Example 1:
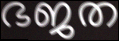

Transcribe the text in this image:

ഭജത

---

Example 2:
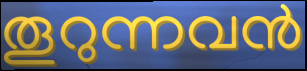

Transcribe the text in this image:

തൂറുന്നവൻ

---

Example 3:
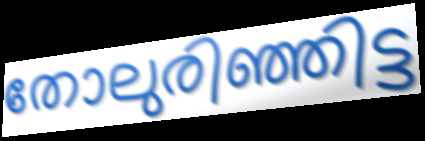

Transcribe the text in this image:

തോലുരിഞ്ഞിട്ട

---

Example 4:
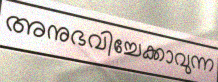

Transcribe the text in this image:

അനുഭവിച്ചേക്കാവുന്ന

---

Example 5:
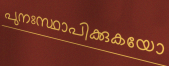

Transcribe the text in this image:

പുനഃസ്ഥാപിക്കുകയോ